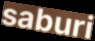
saburi